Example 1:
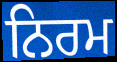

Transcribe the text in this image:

ਨਿਰਮ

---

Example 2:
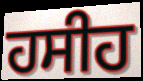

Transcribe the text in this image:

ਹਸੀਹ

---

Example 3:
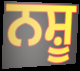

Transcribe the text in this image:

ਨਸ਼ੂ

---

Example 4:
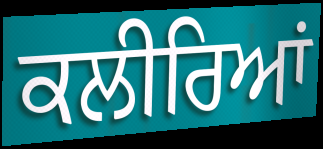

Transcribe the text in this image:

ਕਲੀਰਿਆਂ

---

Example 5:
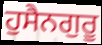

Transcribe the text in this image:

ਹੁਸੈਨਗੁਰੂ